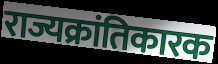
राज्यक्रांतिकारक